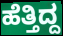
ಹೆತ್ತಿದ್ದ